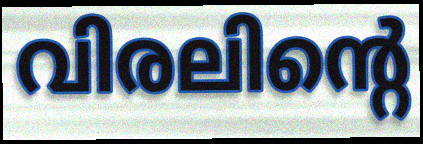
വിരലിന്റെ